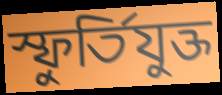
স্ফুর্তিযুক্ত